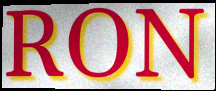
RON